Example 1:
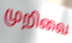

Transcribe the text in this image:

முறிவை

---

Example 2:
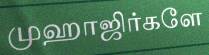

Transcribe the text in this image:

முஹாஜிர்களே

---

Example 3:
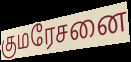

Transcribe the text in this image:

குமரேசனை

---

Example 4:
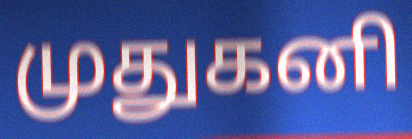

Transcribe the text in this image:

முதுகனி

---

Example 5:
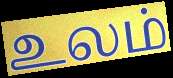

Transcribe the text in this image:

உலம்